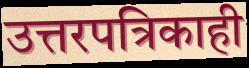
उत्तरपत्रिकाही